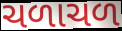
ચળાચળ